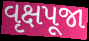
વૃક્ષપૂજા